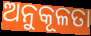
ଅନୁକୂଳତା